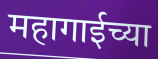
महागाईच्या